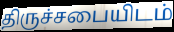
திருச்சபையிடம்